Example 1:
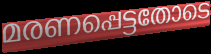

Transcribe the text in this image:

മരണപ്പെട്ടതോടെ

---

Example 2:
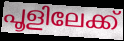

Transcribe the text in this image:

പൂളിലേക്ക്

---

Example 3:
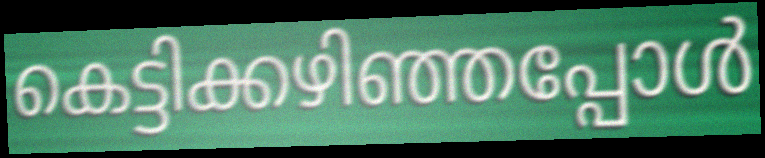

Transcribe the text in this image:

കെട്ടിക്കഴിഞ്ഞപ്പോൾ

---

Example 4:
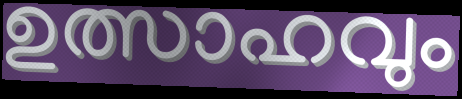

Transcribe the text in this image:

ഉത്സാഹവും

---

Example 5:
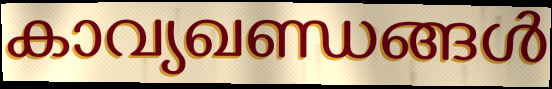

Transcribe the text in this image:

കാവ്യഖണ്ഡങ്ങൾ